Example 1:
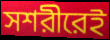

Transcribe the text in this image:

সশরীরেই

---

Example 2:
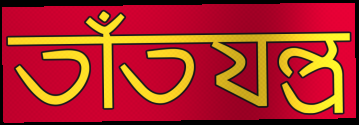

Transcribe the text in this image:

তাঁতযন্ত্র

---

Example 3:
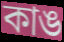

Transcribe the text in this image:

কাঙ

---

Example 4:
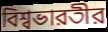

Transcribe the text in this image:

বিশ্বভারতীর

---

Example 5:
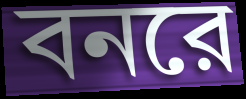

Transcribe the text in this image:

বনরে